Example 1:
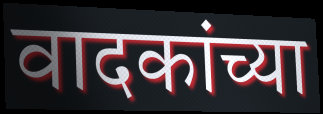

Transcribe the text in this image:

वादकांच्या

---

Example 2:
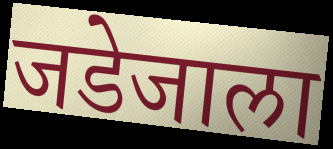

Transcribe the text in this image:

जडेजाला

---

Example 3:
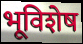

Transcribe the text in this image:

भूविशेष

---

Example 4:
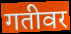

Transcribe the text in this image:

गतीवर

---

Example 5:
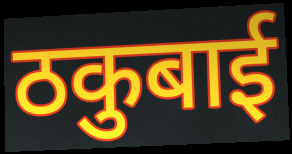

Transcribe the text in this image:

ठकुबाई